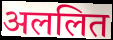
अललित